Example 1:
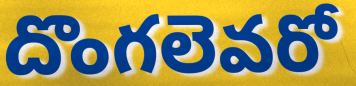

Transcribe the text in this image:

దొంగలెవరో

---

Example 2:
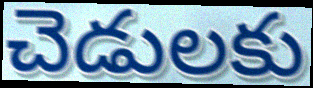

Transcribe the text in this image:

చెడులకు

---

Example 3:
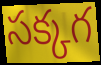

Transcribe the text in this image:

సక్కగ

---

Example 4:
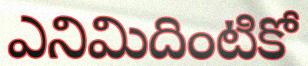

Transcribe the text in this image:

ఎనిమిదింటికో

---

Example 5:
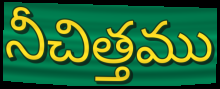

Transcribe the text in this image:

నీచిత్తము